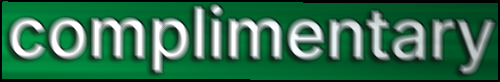
complimentary